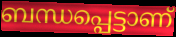
ബന്ധപ്പെട്ടാണ്